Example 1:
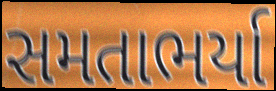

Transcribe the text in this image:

સમતાભર્યા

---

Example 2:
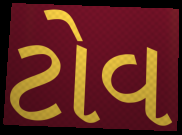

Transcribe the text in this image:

ટોવ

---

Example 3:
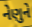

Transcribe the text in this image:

નેણુને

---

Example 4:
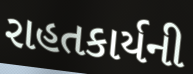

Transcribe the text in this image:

રાહતકાર્યની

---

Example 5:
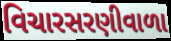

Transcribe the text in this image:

વિચારસરણીવાળા